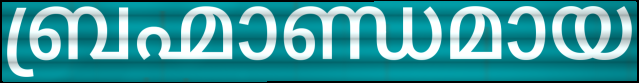
ബ്രഹ്മാണ്ഡമായ